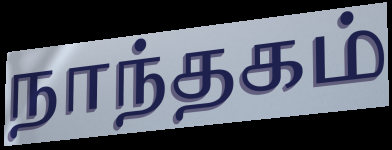
நாந்தகம்